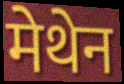
मेथेन